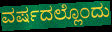
ವರ್ಷದಲ್ಲೊಂದು